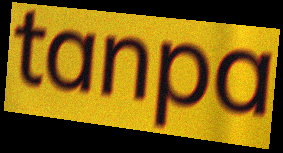
tanpa